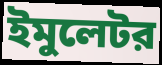
ইমুলেটর